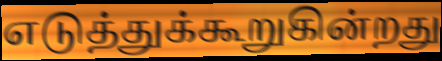
எடுத்துக்கூறுகின்றது